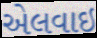
એલવાઇ